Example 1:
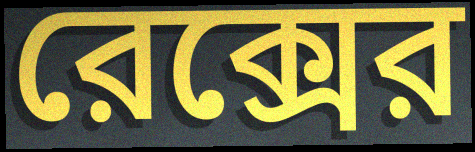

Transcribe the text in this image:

রেক্সের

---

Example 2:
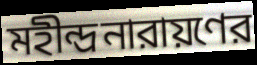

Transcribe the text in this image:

মহীন্দ্রনারায়ণের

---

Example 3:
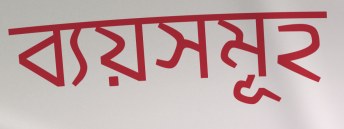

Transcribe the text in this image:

ব্যয়সমূহ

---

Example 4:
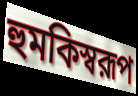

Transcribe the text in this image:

হুমকিস্বরূপ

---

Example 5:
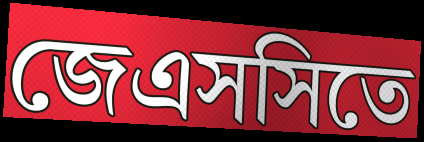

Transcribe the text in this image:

জেএসসিতে